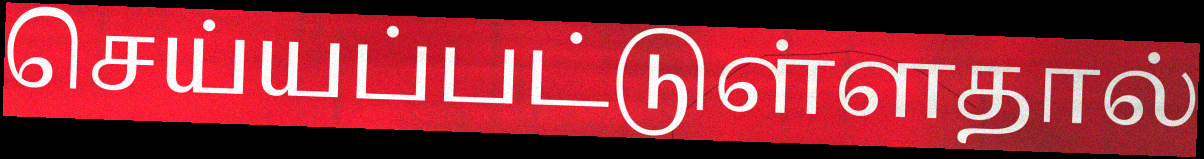
செய்யப்பட்டுள்ளதால்